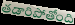
తడారిపోతోంది